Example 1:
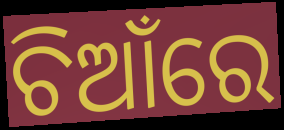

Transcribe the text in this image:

ଚିଆଁରେ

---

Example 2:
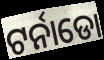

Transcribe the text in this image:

ଟର୍ନାଡୋ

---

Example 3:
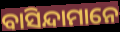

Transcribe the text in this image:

ବାସିନ୍ଦାମାନେ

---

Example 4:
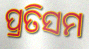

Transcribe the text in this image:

ପ୍ରତିସମ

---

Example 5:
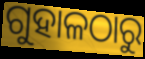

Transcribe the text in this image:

ଗୁହାଳଠାରୁ